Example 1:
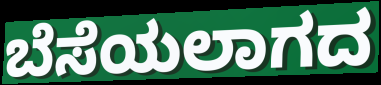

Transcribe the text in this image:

ಬೆಸೆಯಲಾಗದ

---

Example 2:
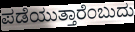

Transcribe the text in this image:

ಪಡೆಯುತ್ತಾರೆಂಬುದು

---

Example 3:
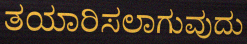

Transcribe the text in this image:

ತಯಾರಿಸಲಾಗುವುದು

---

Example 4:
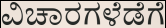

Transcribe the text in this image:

ವಿಚಾರಗಳೆಡೆಗೆ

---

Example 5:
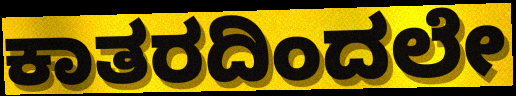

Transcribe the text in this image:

ಕಾತರದಿಂದಲೇ